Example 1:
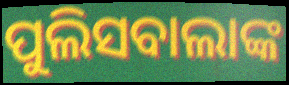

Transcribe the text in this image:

ପୁଲିସବାଲାଙ୍କ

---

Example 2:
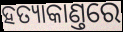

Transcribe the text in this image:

ହତ୍ୟାକାଣ୍ତରେ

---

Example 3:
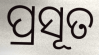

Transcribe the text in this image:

ପ୍ରସୂତ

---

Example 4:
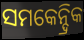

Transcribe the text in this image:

ସମକେନ୍ଦ୍ରିକ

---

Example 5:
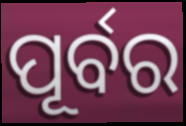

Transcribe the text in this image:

ପୂର୍ବର